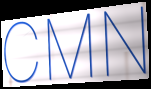
CMN